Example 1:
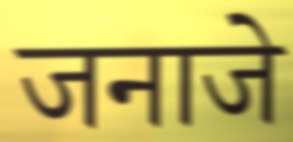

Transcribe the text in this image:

जनाजे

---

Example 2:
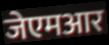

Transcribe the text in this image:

जेएमआर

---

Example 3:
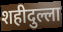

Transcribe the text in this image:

शहीदुल्ला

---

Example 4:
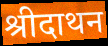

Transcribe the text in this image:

श्रीदाथन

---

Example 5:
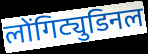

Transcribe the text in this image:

लोंगिट्युडिनल